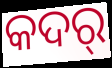
କଦର୍